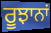
ਰੂਝਾਨਾਂ